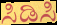
ಸಿಡಿಸಿ